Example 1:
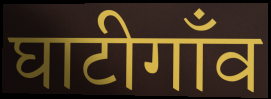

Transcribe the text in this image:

घाटीगाँव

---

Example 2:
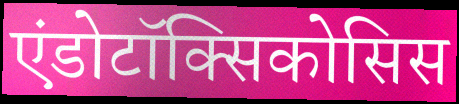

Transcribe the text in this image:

एंडोटॉक्सिकोसिस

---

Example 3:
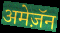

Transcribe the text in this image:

अमेज़ॅन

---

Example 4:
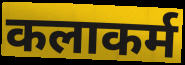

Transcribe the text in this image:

कलाकर्म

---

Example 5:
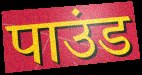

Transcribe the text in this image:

पाउंड